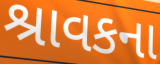
શ્રાવકના